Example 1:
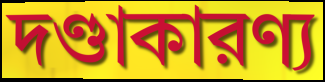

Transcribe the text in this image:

দণ্ডাকারণ্য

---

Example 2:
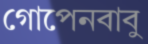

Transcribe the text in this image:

গোপেনবাবু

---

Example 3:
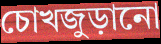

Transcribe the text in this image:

চোখজুড়ানো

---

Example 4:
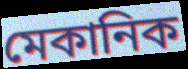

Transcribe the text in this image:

মেকানিক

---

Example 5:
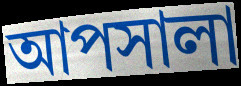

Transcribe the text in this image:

আপসালা